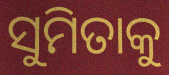
ସୁମିତାକୁ